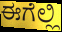
ಈಗೆಲ್ಲಿ